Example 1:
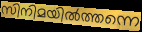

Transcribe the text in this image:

സിനിമയിൽത്തന്നെ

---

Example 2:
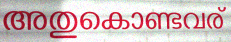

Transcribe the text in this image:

അതുകൊണ്ടവര്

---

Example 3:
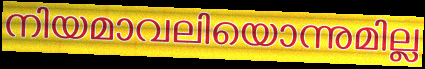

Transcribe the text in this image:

നിയമാവലിയൊന്നുമില്ല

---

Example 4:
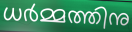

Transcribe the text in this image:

ധർമ്മത്തിനു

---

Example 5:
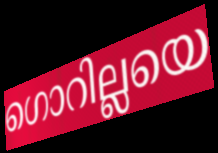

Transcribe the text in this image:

ഗൊറില്ലയെ